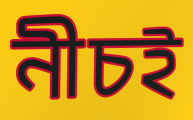
নীচই